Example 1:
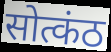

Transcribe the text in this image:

सोत्कंठ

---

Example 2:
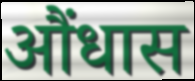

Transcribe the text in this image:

औंधास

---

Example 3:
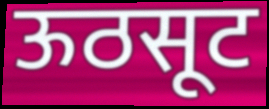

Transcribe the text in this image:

ऊठसूट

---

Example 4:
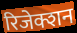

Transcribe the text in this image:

रिजेक्शन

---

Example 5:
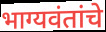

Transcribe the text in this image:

भाग्यवंतांचे